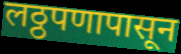
लठ्ठपणापासून